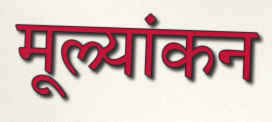
मूल्यांकन